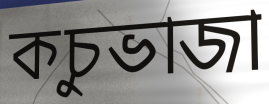
কচুভাজা